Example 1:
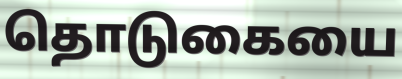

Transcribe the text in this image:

தொடுகையை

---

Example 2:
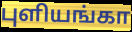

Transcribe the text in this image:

புளியங்கா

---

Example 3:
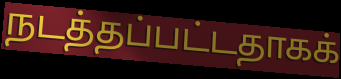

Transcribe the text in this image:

நடத்தப்பட்டதாகக்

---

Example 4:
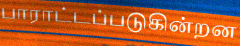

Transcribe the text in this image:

பாராட்டப்படுகின்றன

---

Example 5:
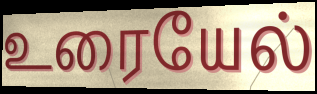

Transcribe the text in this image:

உரையேல்